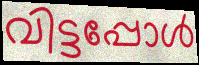
വിട്ടപ്പോൾ